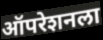
ऑपरेशनला